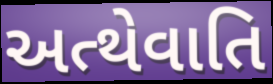
અત્થેવાતિ